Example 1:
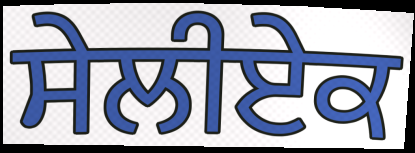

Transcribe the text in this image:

ਸੇਲੀਏਕ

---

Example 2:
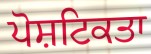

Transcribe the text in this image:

ਪੋਸ਼ਟਿਕਤਾ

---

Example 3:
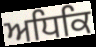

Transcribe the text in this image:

ਅਧਿਕਿ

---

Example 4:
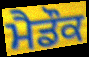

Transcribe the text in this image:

ਮੈਡੌਕ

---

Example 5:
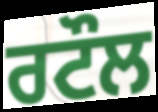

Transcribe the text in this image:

ਰਟੌਲ